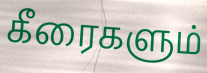
கீரைகளும்